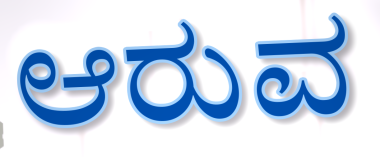
ಆರುವ